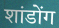
शांडोंग